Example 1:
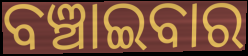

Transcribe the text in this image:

ବଞ୍ଚାଇବାର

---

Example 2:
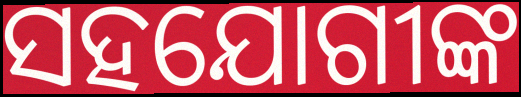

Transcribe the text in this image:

ସହଯୋଗୀଙ୍କ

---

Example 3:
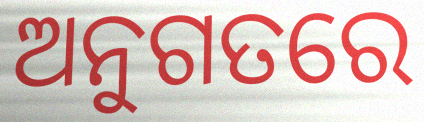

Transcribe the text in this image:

ଅନୁଗତରେ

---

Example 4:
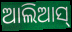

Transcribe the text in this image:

ଆଲିଆସ୍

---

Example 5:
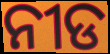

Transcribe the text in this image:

ନୀଡ